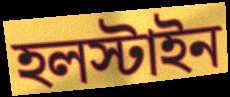
হলস্টাইন